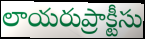
లాయరుప్రాక్టీసు